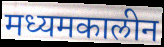
मध्यमकालीन